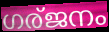
ഗര്ജനം